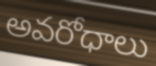
అవరోధాలు